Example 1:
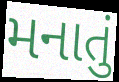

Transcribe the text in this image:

મનાતું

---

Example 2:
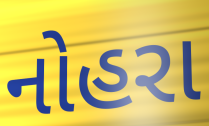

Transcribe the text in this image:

નોહરા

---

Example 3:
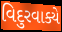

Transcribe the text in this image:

વિદુરવાક્યે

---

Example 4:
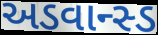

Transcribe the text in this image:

અડવાન્સ્ડ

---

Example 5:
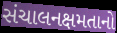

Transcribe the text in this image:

સંચાલનક્ષમતાનો